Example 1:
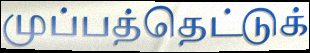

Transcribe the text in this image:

முப்பத்தெட்டுக்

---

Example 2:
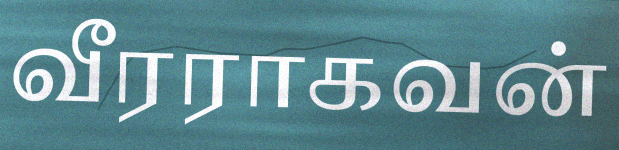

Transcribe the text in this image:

வீரராகவன்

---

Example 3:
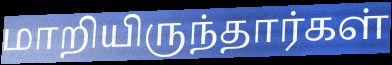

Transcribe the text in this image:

மாறியிருந்தார்கள்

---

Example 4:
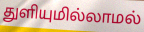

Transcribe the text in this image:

துளியுமில்லாமல்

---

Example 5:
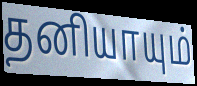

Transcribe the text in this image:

தனியாயும்